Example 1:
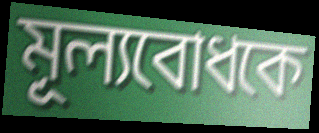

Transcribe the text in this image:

মূল্যবোধকে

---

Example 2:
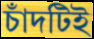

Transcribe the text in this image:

চাঁদটিই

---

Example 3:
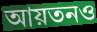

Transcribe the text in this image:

আয়তনও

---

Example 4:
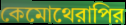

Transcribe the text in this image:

কেমোথেরাপির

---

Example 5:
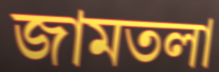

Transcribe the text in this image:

জামতলা